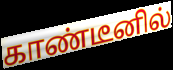
காண்டீனில்